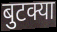
बुटक्या